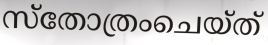
സ്തോത്രംചെയ്ത്